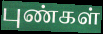
புண்கள்